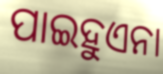
ପାଇହୁଏନା